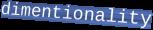
dimentionality